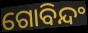
ଗୋବିନ୍ଦଂ